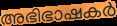
അഭിഭാഷകർ